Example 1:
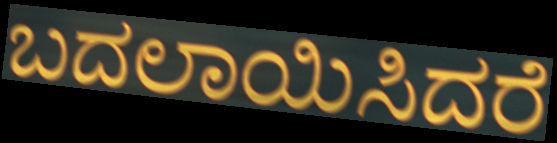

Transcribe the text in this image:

ಬದಲಾಯಿಸಿದರೆ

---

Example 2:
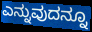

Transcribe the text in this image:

ಎನ್ನುವುದನ್ನೂ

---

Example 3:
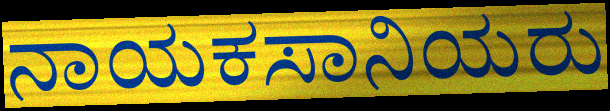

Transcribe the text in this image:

ನಾಯಕಸಾನಿಯರು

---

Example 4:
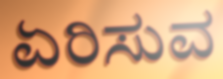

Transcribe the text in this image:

ಏರಿಸುವ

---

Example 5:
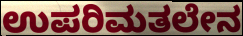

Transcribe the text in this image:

ಉಪರಿಮತಲೇನ